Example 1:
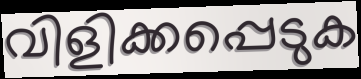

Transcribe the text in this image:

വിളിക്കപ്പെടുക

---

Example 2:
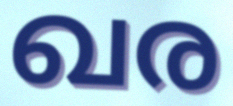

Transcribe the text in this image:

ഖര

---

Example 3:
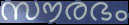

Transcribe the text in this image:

സൗരഭം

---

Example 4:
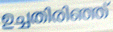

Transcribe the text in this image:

ഉച്ചതിരിഞ്ഞ്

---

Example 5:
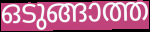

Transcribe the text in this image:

ഒടുങ്ങാത്ത